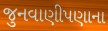
જુનવાણીપણાના